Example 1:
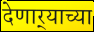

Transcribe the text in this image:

देणार्याच्या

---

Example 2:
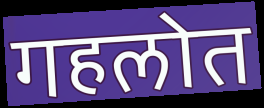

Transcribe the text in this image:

गहलोत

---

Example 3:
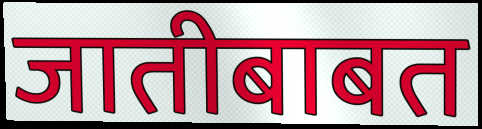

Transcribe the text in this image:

जातीबाबत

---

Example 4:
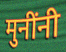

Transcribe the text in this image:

मुनींनी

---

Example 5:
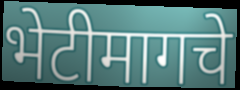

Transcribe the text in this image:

भेटीमागचे